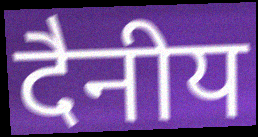
दैनीय